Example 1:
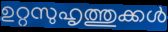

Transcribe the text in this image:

ഉറ്റസുഹൃത്തുക്കൾ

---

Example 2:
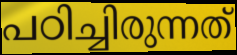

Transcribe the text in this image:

പഠിച്ചിരുന്നത്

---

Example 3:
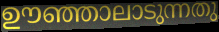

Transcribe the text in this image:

ഊഞ്ഞാലാടുന്നതു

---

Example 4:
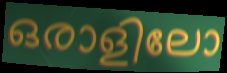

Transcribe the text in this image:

ഒരാളിലോ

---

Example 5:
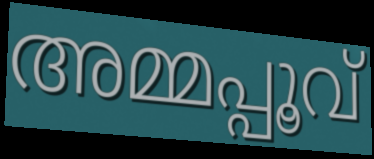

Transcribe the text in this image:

അമ്മപ്പൂവ്